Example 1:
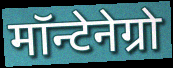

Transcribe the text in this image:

मॉन्टेनेग्रो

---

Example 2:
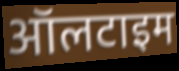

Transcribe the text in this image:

ऑलटाइम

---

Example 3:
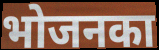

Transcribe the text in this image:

भोजनका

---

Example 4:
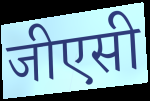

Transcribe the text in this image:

जीएसी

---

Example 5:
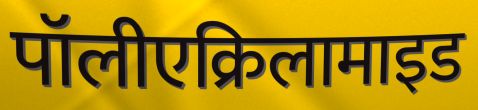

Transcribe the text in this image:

पॉलीएक्रिलामाइड